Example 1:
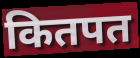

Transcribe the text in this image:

कितपत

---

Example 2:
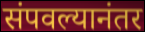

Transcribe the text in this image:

संपवल्यानंतर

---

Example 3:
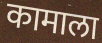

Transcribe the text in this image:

कामाला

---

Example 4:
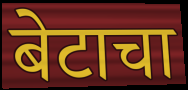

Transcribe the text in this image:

बेटाचा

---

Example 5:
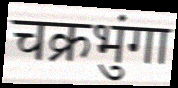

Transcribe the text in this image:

चक्रभुंगा